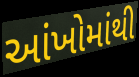
આંખોમાંથી